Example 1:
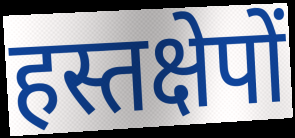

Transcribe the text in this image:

हस्तक्षेपों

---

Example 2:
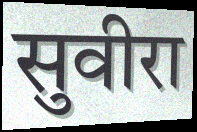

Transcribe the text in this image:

सुवीरा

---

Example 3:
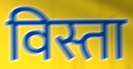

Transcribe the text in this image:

विस्ता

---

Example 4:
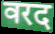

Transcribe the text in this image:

वरद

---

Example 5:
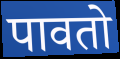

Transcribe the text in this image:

पावतो